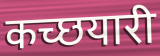
कच्छयारी